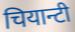
चियान्टी